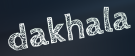
dakhala